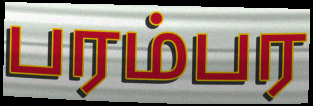
பரம்பர